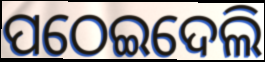
ପଠେଇଦେଲି